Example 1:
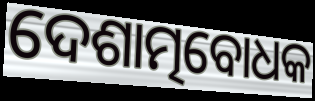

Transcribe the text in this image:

ଦେଶାତ୍ମବୋଧକ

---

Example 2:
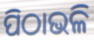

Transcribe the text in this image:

ପିଠାଭଳି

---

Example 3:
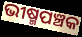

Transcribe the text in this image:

ଭୀଷ୍ମପଞ୍ଚକ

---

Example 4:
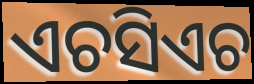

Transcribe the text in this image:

ଏଚସିଏଚ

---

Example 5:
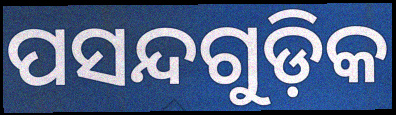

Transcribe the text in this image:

ପସନ୍ଦଗୁଡ଼ିକ